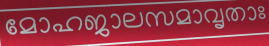
മോഹജാലസമാവൃതാഃ